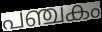
പഞ്ചകം